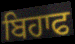
ਬਿਹਾਫ